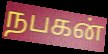
நபகன்